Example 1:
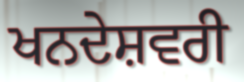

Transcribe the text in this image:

ਖਨਦੇਸ਼ਵਰੀ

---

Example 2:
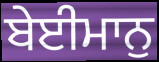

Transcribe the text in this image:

ਬੇਈਮਾਨੁ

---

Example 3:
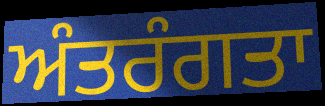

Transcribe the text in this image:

ਅੰਤਰੰਗਤਾ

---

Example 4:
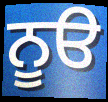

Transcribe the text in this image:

ਨੂੳ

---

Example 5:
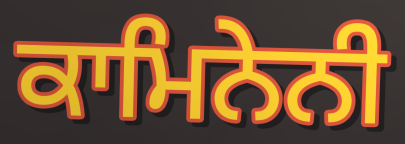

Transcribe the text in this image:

ਕਾਮਿਨੇਨੀ